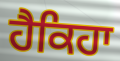
ਹੈਕਿਹਾ